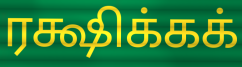
ரக்ஷிக்கக்